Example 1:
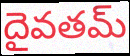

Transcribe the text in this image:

దైవతమ్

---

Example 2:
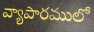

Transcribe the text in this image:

వ్యాపారములో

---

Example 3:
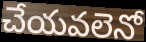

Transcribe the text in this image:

చేయవలెనో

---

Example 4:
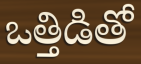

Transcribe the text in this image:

ఒత్తిడితో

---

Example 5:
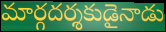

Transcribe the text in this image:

మార్గదర్శకుడైనాడు